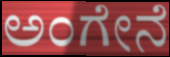
ಅಂಗೇನೆ